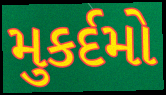
મુકર્દમો